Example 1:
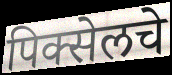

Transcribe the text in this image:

पिक्सेलचे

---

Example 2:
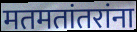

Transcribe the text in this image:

मतमतांतरांना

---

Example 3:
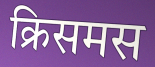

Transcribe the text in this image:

क्रिसमस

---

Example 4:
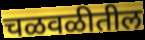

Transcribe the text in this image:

चळवळीतील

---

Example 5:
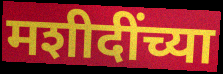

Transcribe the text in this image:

मशीदींच्या